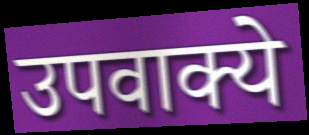
उपवाक्ये